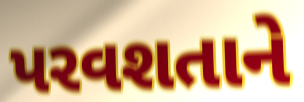
પરવશતાને